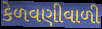
કેળવણીવાળી